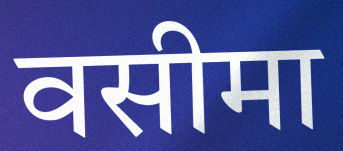
वसीमा